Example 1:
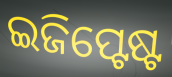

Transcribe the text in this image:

ଇଜିପ୍ଟେଷ୍ଟ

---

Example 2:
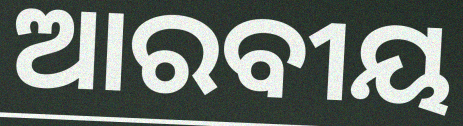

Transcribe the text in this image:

ଆରବୀୟ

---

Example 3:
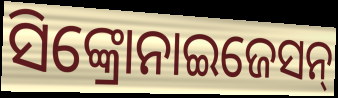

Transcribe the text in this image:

ସିଙ୍କ୍ରୋନାଇଜେସନ୍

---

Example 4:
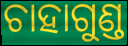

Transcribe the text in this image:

ଚାହାଗୁଣ୍ଡ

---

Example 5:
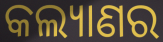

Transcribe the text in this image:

କଲ୍ୟାଣର